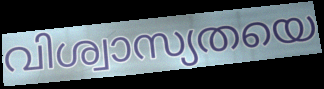
വിശ്വാസ്യതയെ